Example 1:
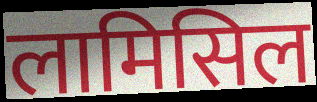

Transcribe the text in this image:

लामिसिल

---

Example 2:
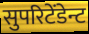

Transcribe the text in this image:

सुपरिटेंडेन्ट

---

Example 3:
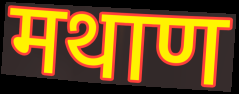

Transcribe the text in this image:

मथाण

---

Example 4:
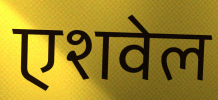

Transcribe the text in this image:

एशवेल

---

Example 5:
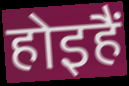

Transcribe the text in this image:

होइहैं